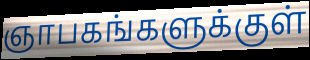
ஞாபகங்களுக்குள்